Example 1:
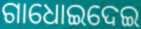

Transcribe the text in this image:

ଗାଧୋଇଦେଇ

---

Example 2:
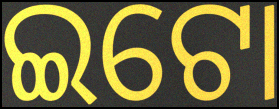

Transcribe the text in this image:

ଇଟୋ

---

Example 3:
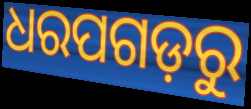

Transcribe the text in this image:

ଧରପଗଡ଼ରୁ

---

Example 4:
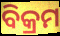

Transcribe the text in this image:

ବିକ୍ରମ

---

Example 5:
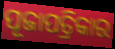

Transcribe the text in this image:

ପୂଜାପତ୍ରିକାର